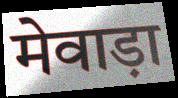
मेवाड़ा